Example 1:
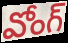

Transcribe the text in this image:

వోంగ్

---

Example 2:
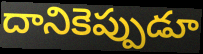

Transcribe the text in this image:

దానికెప్పుడూ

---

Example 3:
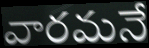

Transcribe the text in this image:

వారమనే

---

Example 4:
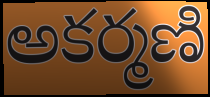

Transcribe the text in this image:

అకర్మణి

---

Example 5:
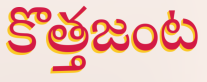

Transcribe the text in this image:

కొత్తజంట